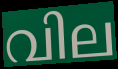
വില